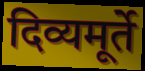
दिव्यमूर्ते